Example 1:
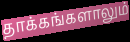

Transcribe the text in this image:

தாக்கங்களாலும்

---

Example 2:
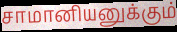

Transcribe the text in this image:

சாமானியனுக்கும்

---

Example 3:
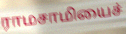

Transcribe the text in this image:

ராமசாமியைச்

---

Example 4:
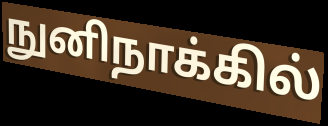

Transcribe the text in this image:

நுனிநாக்கில்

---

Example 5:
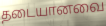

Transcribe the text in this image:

தடையானவை